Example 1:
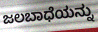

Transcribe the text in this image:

ಜಲಬಾಧೆಯನ್ನು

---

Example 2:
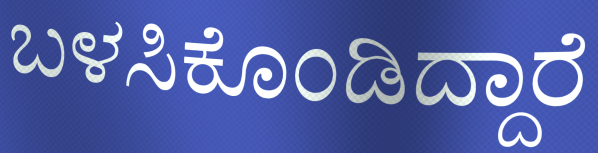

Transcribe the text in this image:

ಬಳಸಿಕೊಂಡಿದ್ದಾರೆ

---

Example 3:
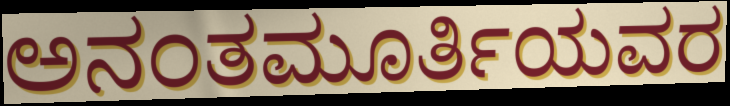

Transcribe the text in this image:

ಅನಂತಮೂರ್ತಿಯವರ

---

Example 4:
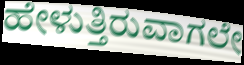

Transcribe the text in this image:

ಹೇಳುತ್ತಿರುವಾಗಲೇ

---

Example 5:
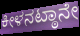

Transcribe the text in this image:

ಕೀಳನಟ್ಠಾನೇ